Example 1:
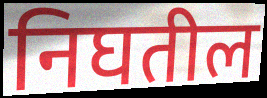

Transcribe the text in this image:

निघतील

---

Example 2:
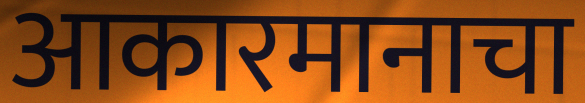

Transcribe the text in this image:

आकारमानाचा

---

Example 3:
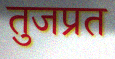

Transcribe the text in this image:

तुजप्रत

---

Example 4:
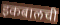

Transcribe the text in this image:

इकबालची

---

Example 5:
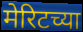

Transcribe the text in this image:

मेरिटच्या